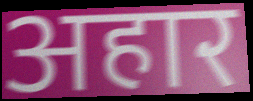
अहार